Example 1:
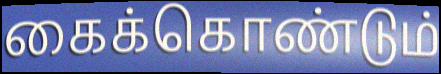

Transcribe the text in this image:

கைக்கொண்டும்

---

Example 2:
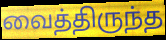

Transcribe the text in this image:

வைத்திருந்த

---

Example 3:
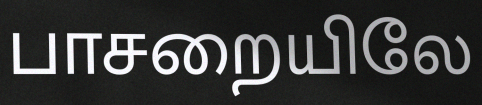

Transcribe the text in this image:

பாசறையிலே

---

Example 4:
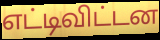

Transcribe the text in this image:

எட்டிவிட்டன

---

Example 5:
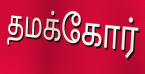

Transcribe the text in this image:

தமக்கோர்